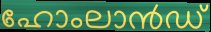
ഹോംലാൻഡ്